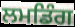
ਲਮਡਿੰਗ